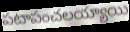
పటాపంచలయ్యాయి